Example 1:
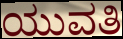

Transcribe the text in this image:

ಯುವತಿ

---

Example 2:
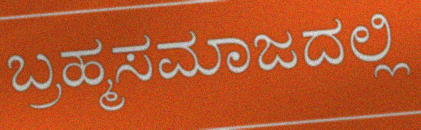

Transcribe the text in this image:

ಬ್ರಹ್ಮಸಮಾಜದಲ್ಲಿ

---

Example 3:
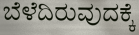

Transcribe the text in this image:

ಬೆಳೆದಿರುವುದಕ್ಕೆ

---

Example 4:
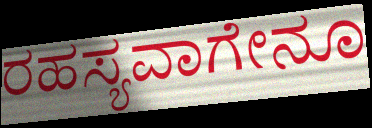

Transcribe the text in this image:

ರಹಸ್ಯವಾಗೇನೂ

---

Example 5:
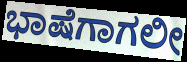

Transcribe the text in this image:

ಭಾಷೆಗಾಗಲೀ